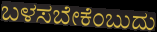
ಬಳಸಬೇಕೆಂಬುದು